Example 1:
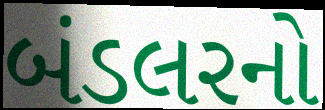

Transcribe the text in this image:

બંડલરનો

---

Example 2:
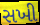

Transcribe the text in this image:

સખી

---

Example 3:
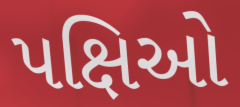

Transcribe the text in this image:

પક્ષિઓ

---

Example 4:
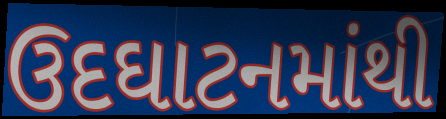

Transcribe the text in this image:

ઉદઘાટનમાંથી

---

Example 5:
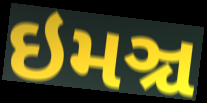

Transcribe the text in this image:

ઇમઞ્ચ